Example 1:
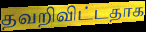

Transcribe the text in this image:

தவறிவிட்டதாக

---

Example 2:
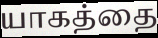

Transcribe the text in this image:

யாகத்தை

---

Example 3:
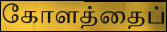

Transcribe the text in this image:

கோளத்தைப்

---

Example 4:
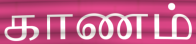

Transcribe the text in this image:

காணம்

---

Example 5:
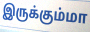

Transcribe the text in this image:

இருக்கும்மா